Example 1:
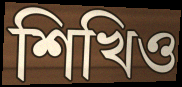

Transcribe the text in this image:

শিখিও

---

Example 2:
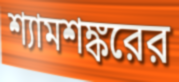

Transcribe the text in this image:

শ্যামশঙ্করের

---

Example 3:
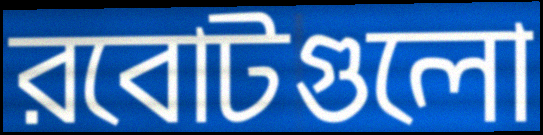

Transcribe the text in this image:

রবোটগুলো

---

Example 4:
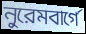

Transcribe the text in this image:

নুরেমবার্গে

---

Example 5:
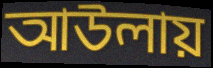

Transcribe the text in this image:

আউলায়